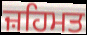
ਜ਼ਹਿਮਤ